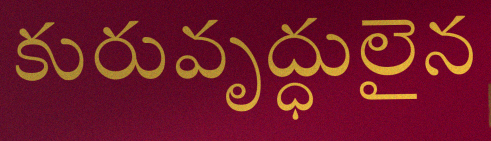
కురువృద్ధులైన